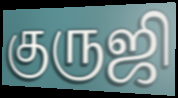
குருஜி